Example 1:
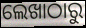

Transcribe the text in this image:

ଲେଖାଠାରୁ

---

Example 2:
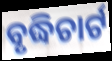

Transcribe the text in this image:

ବୃଦ୍ଧିଚାର୍ଟ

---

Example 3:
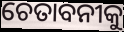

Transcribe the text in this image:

ଚେତାବନୀକୁ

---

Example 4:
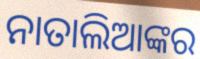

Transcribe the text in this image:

ନାତାଲିଆଙ୍କର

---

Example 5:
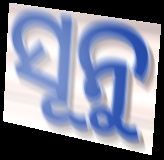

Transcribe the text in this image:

ସୂନୁ